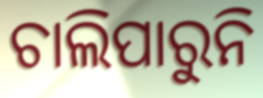
ଚାଲିପାରୁନି